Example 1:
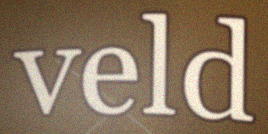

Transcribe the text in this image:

veld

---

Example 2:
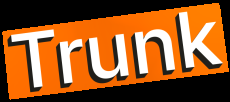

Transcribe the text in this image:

Trunk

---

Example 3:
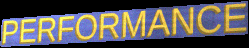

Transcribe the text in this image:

PERFORMANCE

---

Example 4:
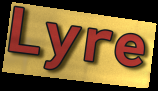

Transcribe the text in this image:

Lyre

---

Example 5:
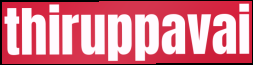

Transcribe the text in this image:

thiruppavai